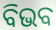
ବିଭବ